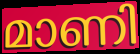
മാണി